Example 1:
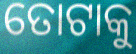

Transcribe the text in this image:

ତୋଟାକୁ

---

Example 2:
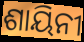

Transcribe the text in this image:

ଶାୟିନୀ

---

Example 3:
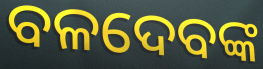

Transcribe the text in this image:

ବଳଦେବଙ୍କ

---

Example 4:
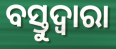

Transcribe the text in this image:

ବସ୍ତୁଦ୍ଵାରା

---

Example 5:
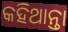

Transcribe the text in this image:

କହିଥାନ୍ତା